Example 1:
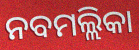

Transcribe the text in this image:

ନବମଲ୍ଲିକା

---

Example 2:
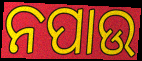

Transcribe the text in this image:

ନପାଉ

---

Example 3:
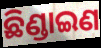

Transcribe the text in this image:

ଛିଣ୍ଡାଇଣ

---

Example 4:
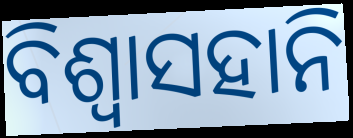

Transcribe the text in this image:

ବିଶ୍ବାସହାନି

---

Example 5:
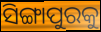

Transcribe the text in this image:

ସିଙ୍ଗାପୁରକୁ